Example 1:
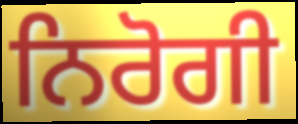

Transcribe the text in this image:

ਨਿਰੋਗੀ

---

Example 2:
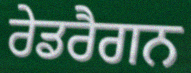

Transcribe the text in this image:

ਰੇਡਰੈਗਨ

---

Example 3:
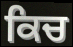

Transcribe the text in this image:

ਕਿਚ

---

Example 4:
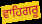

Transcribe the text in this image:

ਵਾਹਿਗਰੂ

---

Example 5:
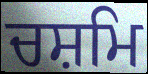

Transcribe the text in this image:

ਚਸ਼ਮਿ